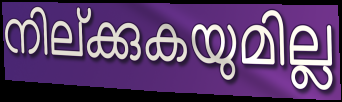
നില്ക്കുകയുമില്ല